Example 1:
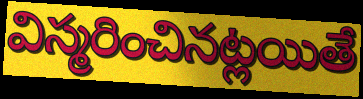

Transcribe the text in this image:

విస్మరించినట్లయితే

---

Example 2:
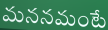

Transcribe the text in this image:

మననమంటే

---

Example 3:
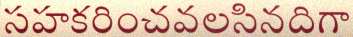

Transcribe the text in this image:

సహకరించవలసినదిగా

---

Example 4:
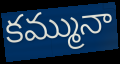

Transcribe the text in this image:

కమ్మునా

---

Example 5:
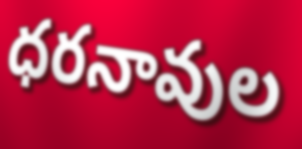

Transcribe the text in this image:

ధరనావుల